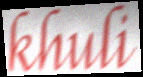
khuli